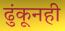
ढुंकूनही